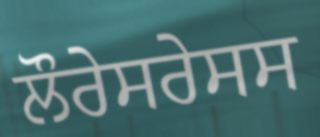
ਲੌਰੇਸਰੇਸਸ